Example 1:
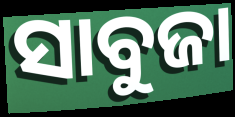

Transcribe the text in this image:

ସାବୁଜା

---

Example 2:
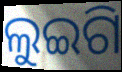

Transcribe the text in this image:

ଲୁଇଗି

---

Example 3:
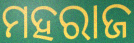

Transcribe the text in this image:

ମହରାଜ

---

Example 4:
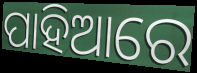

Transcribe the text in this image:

ପାହିଆରେ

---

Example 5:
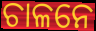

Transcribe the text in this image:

ଚାଳନେ